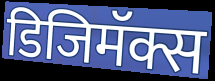
डिजिमॅक्स